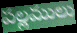
పల్లములు